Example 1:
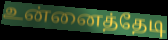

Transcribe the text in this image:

உன்னைத்தேடி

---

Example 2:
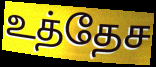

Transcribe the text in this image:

உத்தேச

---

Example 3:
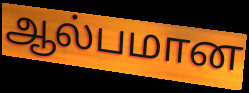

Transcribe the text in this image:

ஆல்பமான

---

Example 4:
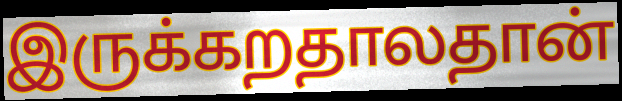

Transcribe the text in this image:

இருக்கறதாலதான்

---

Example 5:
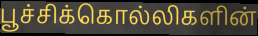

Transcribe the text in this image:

பூச்சிக்கொல்லிகளின்